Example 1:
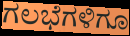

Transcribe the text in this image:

ಗಲಭೆಗಳಿಗೂ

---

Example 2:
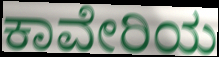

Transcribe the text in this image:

ಕಾವೇರಿಯ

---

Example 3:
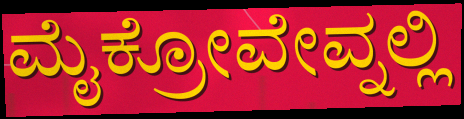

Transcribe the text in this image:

ಮೈಕ್ರೋವೇವ್ನಲ್ಲಿ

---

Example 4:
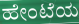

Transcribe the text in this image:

ಹೇಂಟೆಯ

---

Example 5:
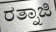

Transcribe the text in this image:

ರತ್ನಾಜಿ